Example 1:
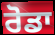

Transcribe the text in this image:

ਰੋਡਾ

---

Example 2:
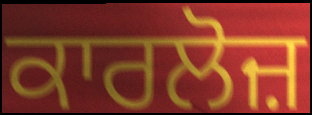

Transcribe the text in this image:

ਕਾਰਲੋਜ਼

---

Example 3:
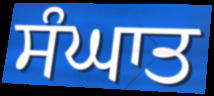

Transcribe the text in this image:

ਸੰਘਾਤ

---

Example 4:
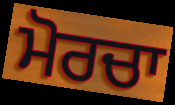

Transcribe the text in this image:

ਮੋਰਚਾ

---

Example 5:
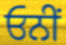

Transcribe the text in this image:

ਓਨੀਂ